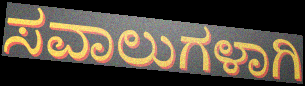
ಸವಾಲುಗಳಾಗಿ